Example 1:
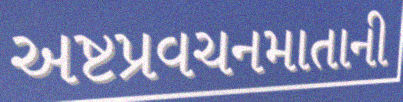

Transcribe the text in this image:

અષ્ટપ્રવચનમાતાની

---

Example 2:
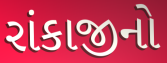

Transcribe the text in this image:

રાંકાજીનો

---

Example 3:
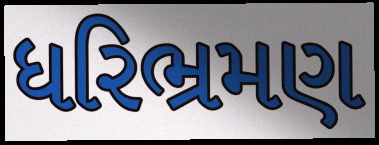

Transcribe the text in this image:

ધરિભ્રમણ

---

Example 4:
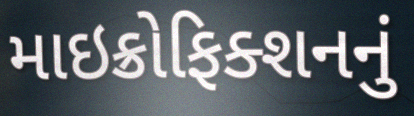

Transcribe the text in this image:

માઇક્રોફિક્શનનું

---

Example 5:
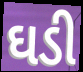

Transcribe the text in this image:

ઘડી